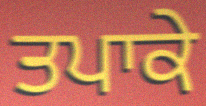
ਤਪਾਕੇ